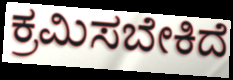
ಕ್ರಮಿಸಬೇಕಿದೆ